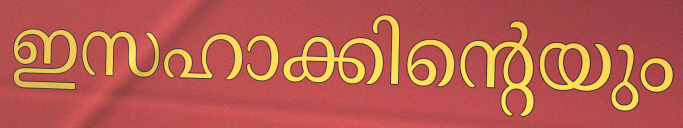
ഇസഹാക്കിന്റെയും